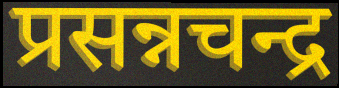
प्रसन्नचन्द्र